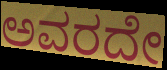
ಅವರದೇ